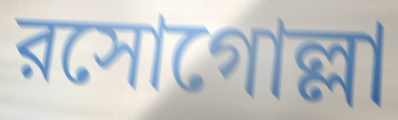
রসোগোল্লা